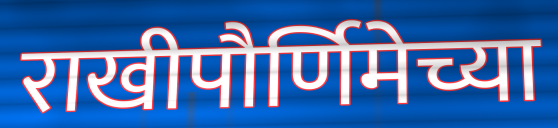
राखीपौर्णिमेच्या